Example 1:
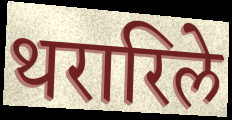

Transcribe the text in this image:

थरारिले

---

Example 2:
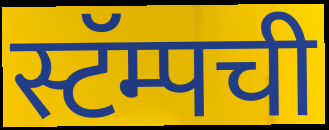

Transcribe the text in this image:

स्टॅम्पची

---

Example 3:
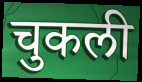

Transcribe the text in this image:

चुकली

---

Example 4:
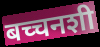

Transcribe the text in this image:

बच्चनशी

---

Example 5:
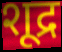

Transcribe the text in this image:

शूद्र